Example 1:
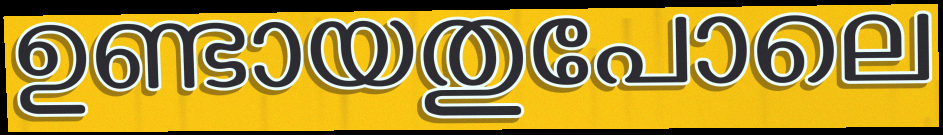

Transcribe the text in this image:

ഉണ്ടായതുപോലെ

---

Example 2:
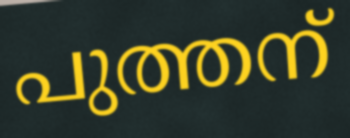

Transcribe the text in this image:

പുത്തന്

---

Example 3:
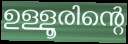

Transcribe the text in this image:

ഉള്ളൂരിന്റെ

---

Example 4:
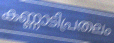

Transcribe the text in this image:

കണ്ണാടിപ്രതലം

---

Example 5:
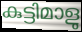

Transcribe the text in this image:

കുട്ടിമാളു